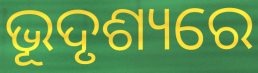
ଭୂଦୃଶ୍ୟରେ